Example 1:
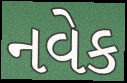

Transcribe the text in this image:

નવેક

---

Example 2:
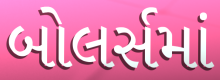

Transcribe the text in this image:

બોલર્સમાં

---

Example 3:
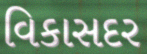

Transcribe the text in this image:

વિકાસદર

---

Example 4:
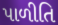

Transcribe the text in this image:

પાળીતિ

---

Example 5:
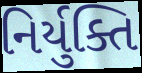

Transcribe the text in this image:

નિર્યુક્તિ